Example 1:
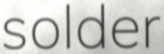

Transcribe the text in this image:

solder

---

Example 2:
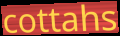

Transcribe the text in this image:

cottahs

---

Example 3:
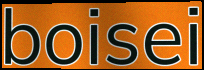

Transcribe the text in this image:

boisei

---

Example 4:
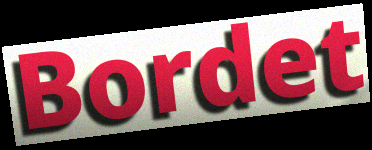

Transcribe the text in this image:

Bordet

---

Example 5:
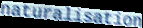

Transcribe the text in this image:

naturalisation